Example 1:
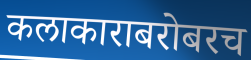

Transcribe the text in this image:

कलाकाराबरोबरच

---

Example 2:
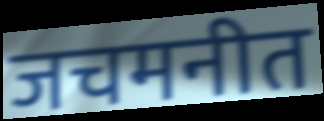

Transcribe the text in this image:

जचमनीत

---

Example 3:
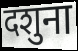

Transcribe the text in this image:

दशुना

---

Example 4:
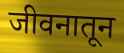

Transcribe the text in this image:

जीवनातून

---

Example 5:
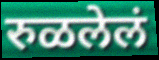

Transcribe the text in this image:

रुळलेलं